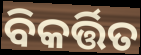
ବିକର୍ତ୍ତିତ